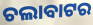
ଚଲାବାଟର